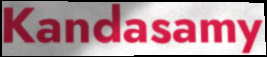
Kandasamy